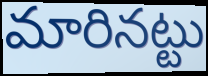
మారినట్టు